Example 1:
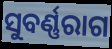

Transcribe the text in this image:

ସୁବର୍ଣ୍ଣରାଗ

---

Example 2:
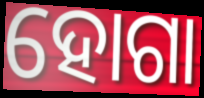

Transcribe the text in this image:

ହୋଗା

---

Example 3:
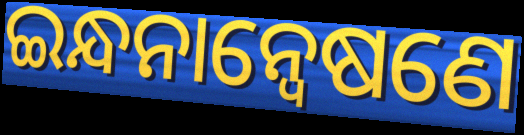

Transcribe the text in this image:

ଇନ୍ଧନାନ୍ଵେଷଣେ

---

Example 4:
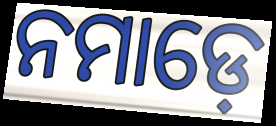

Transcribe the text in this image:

ନମାଡ଼େ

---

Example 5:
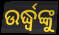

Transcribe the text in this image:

ଉର୍ଦ୍ଧ୍ୱଙ୍କୁ